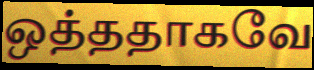
ஒத்ததாகவே